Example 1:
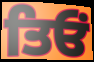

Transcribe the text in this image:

ਤਿਓਂ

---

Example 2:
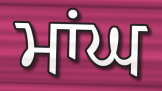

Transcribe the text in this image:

ਮਾਂਘ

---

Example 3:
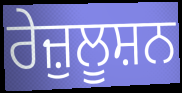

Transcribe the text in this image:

ਰੇਜ਼ੁਲੂਸ਼ਨ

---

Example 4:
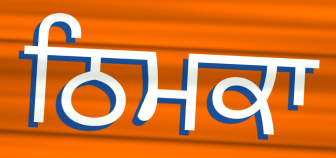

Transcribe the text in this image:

ਠਿਮਕਾ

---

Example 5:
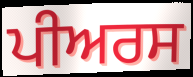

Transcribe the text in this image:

ਪੀਅਰਸ